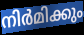
നിർമിക്കും